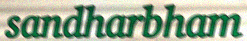
sandharbham